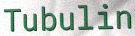
Tubulin